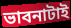
ভাবনাটাই